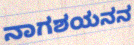
ನಾಗಶಯನನ